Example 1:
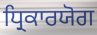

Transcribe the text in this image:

ਧ੍ਰਿਕਾਰਯੋਗ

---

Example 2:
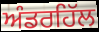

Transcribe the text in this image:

ਅੰਡਰਹਿੱਲ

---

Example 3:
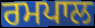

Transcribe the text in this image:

ਰਮਪਾਲ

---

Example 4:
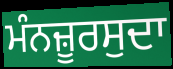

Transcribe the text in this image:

ਮੰਨਜ਼ੂਰਸੁਦਾ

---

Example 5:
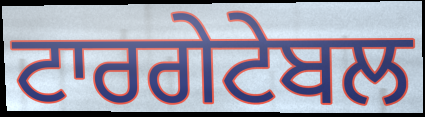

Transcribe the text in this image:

ਟਾਰਗੇਟੇਬਲ